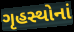
ગૃહસ્થોનાં